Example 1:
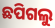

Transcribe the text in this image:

ଛପିଗଲୁ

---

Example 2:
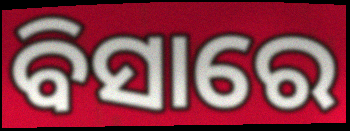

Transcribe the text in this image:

ବିସାରେ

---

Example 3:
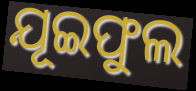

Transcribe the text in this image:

ଯୂଇଫୁଲ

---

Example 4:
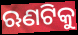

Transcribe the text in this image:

ଋଣଟିକୁ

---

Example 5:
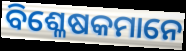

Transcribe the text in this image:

ବିଶ୍ଳେଷକମାନେ